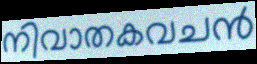
നിവാതകവചൻ